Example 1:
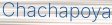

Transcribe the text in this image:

Chachapoya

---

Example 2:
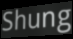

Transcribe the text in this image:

Shung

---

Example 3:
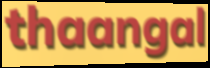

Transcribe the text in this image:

thaangal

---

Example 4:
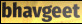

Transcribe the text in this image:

bhavgeet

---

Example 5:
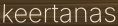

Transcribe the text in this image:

keertanas